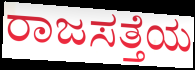
ರಾಜಸತ್ತೆಯ